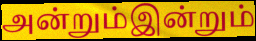
அன்றும்இன்றும்